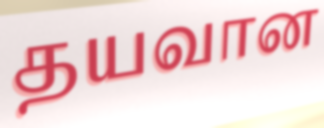
தயவான